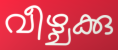
വീഴ്ചക്കു